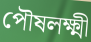
পৌষলক্ষ্মী